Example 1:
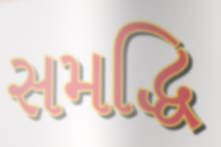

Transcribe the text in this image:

સમદ્ધિ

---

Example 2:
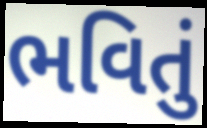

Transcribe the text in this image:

ભવિતું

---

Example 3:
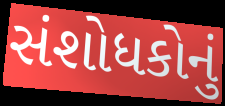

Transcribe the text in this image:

સંશોધકોનું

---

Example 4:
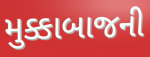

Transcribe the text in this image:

મુક્કાબાજની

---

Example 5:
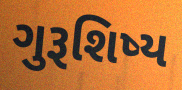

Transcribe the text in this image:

ગુરૂશિષ્ય